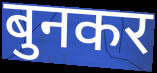
बुनकर